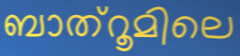
ബാത്റൂമിലെ